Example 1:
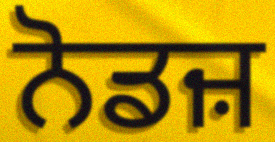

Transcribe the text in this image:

ਨੋਡਜ਼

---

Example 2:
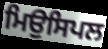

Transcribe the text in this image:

ਮਿਉਸਿਪਲ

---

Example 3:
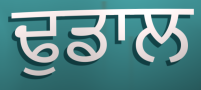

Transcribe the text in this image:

ਢੁਡਾਲ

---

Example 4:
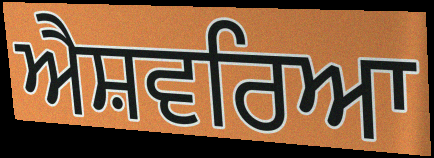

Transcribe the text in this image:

ਐਸ਼ਵਰਿਆ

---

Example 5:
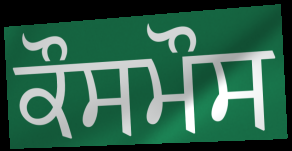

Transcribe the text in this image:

ਕੌਸਮੌਸ